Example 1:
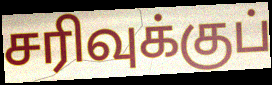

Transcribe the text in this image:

சரிவுக்குப்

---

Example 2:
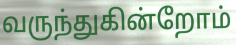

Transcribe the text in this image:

வருந்துகின்றோம்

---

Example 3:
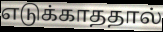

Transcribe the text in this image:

எடுக்காததால்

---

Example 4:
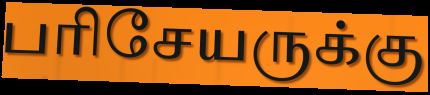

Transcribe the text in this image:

பரிசேயருக்கு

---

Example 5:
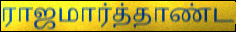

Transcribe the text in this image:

ராஜமார்த்தாண்ட